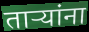
ताऱ्यांना